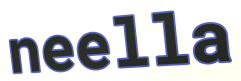
neella